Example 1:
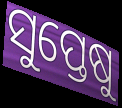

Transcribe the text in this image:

ସୁପ୍ତେଷୁ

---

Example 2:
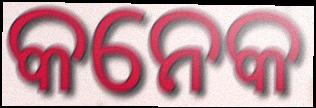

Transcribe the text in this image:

କନେକ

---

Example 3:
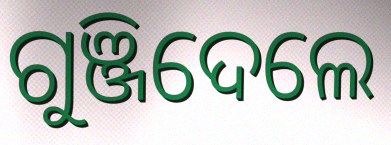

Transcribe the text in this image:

ଗୁଞ୍ଜିଦେଲେ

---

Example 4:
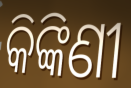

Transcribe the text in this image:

କିଙ୍କିଣୀ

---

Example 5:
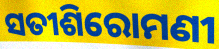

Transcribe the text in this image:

ସତୀଶିରୋମଣୀ